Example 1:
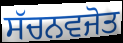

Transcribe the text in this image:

ਸੱਚਨਵਜੋਤ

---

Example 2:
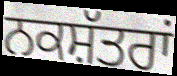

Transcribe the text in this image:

ਨਕਸ਼ੱਤਰਾਂ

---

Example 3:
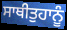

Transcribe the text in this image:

ਸਾਥੀਤੁਹਾਨੂੰ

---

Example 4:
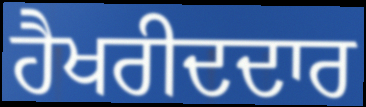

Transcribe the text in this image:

ਹੈਖਰੀਦਦਾਰ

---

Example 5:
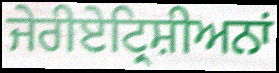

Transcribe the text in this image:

ਜੇਰੀਏਟ੍ਰਿਸ਼ੀਅਨਾਂ